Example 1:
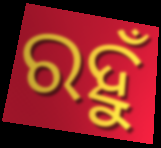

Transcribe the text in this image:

ରହୁଁ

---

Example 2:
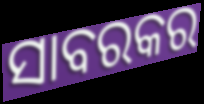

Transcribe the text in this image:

ସାବରକର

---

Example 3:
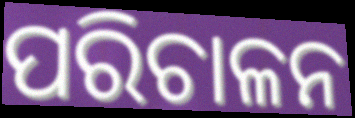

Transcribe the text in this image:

ପରିଚାଳନ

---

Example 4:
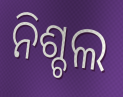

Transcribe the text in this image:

ନିଶ୍ଚଲ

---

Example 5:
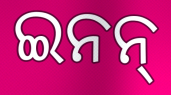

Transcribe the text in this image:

ଇନନ୍